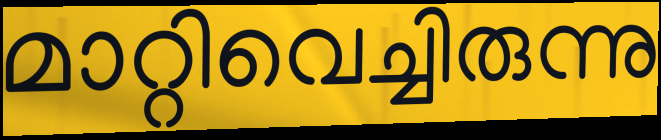
മാറ്റിവെച്ചിരുന്നു